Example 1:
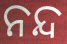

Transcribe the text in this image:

ନନ୍ଦ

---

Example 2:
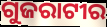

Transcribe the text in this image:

ଗୁଜରାଟୀର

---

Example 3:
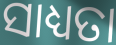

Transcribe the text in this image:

ସାଧ୍ୟତା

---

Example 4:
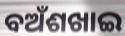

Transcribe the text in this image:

ବଅଁଶଖାଇ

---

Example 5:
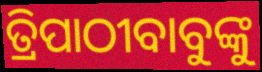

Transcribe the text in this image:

ତ୍ରିପାଠୀବାବୁଙ୍କୁ